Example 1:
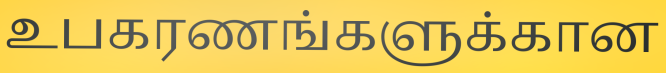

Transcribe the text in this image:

உபகரணங்களுக்கான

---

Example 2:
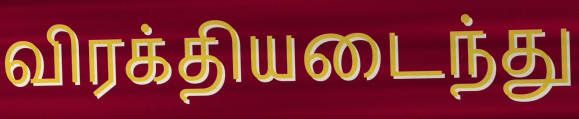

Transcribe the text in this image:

விரக்தியடைந்து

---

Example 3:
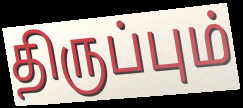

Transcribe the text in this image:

திருப்பும்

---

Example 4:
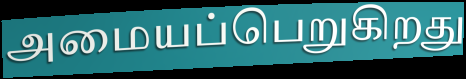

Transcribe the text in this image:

அமையப்பெறுகிறது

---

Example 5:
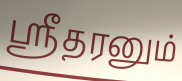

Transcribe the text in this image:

ஸ்ரீதரனும்